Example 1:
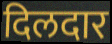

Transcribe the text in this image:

दिलदार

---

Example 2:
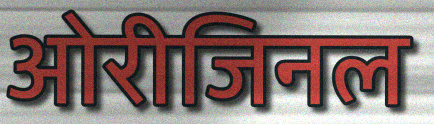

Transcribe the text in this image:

ओरीजिनल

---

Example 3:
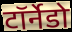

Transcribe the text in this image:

टॉर्नेडो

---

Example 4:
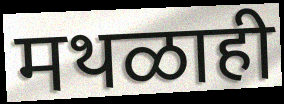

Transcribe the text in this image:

मथळाही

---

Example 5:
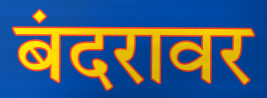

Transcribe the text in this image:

बंदरावर